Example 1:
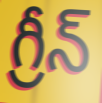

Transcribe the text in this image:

గ్రీన్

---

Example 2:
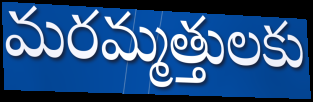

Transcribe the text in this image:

మరమ్మత్తులకు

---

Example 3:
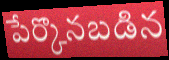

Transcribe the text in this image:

పేర్కొనబడిన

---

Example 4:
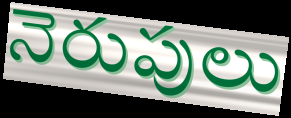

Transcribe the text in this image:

నెరుపులు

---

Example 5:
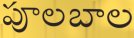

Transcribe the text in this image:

పూలబాల